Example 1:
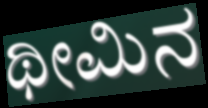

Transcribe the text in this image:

ಥೀಮಿನ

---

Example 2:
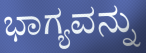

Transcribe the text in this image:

ಭಾಗ್ಯವನ್ನು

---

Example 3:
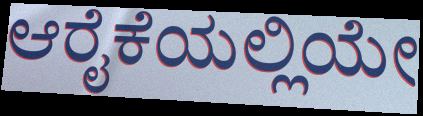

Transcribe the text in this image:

ಆರೈಕೆಯಲ್ಲಿಯೇ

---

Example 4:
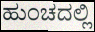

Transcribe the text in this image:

ಹುಂಚದಲ್ಲಿ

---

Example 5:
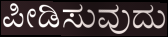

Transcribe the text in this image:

ಪೀಡಿಸುವುದು